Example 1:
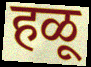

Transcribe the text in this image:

हळू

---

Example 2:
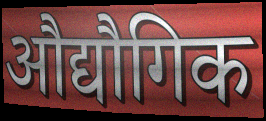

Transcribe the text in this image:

औद्यौगिक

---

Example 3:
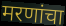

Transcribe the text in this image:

मरणांचा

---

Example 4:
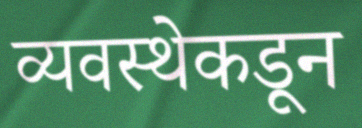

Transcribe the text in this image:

व्यवस्थेकडून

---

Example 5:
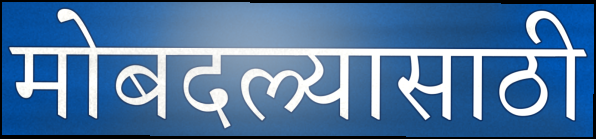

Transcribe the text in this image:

मोबदल्यासाठी